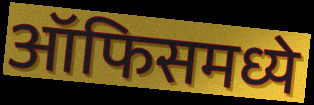
ऑफिसमध्ये